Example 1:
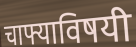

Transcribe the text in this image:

चाफ्याविषयी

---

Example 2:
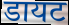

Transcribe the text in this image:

डायट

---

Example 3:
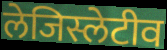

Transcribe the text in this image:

लेजिस्लेटीव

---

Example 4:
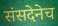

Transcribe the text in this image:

संसदेनेच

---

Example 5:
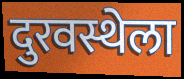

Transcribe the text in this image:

दुरवस्थेला